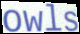
owls